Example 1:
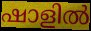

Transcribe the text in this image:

ഷാളിൽ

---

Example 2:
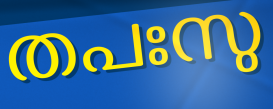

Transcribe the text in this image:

തപഃസു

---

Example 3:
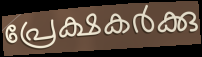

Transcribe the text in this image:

പ്രേക്ഷകർക്കു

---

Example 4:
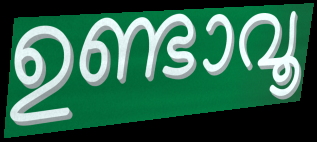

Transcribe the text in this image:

ഉണ്ടാവൂ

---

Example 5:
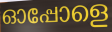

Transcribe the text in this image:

ഓപ്പോളെ